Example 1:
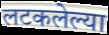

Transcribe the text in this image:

लटकलेल्या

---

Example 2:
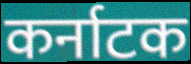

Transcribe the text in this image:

कर्नाटक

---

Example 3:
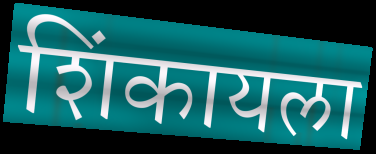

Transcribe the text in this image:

शिंकायला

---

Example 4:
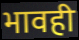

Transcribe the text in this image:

भावही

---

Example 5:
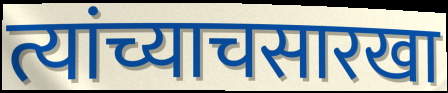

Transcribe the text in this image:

त्यांच्याचसारखा